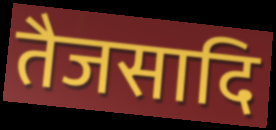
तैजसादि